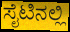
ಸೈಟಿನಲ್ಲಿ